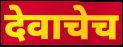
देवाचेच